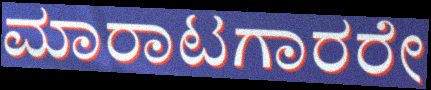
ಮಾರಾಟಗಾರರೇ